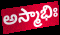
అస్మాభిః